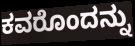
ಕವರೊಂದನ್ನು